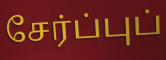
சேர்ப்புப்